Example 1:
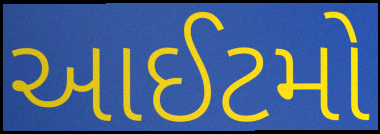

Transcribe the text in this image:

આઈટમો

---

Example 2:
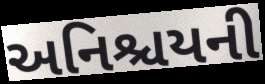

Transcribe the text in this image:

અનિશ્ચયની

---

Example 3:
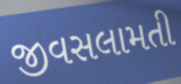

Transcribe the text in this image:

જીવસલામતી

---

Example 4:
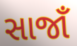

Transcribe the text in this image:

સાજાઁ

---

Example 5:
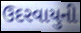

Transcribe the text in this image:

ઉદરવાયુની